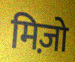
मिज़ो